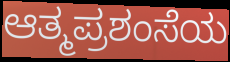
ಆತ್ಮಪ್ರಶಂಸೆಯ